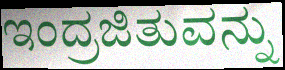
ಇಂದ್ರಜಿತುವನ್ನು